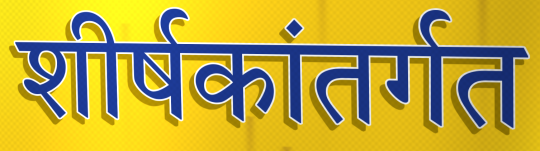
शीर्षकांतर्गत